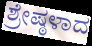
ಶ್ರೇಷ್ಠಳಾದ